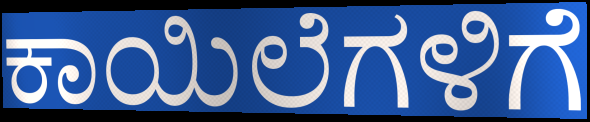
ಕಾಯಿಲೆಗಳಿಗೆ